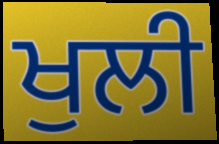
ਖੁਲੀ